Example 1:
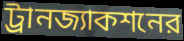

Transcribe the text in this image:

ট্রানজ্যাকশনের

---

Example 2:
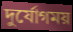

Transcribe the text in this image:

দুর্যোগময়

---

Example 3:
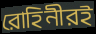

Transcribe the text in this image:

রোহিনীরই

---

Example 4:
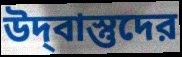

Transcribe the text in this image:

উদ্‌বাস্তুদের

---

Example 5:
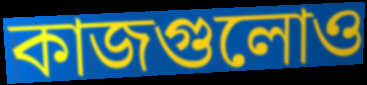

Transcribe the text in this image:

কাজগুলোও